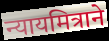
न्यायमित्राने